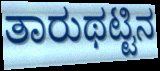
ತಾರುಥಟ್ಟಿನ